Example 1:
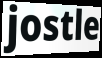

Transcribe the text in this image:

jostle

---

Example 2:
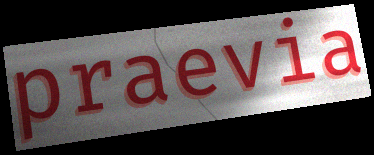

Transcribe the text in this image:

praevia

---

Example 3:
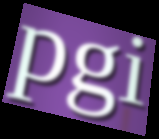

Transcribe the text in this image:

pgi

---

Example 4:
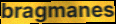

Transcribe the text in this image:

bragmanes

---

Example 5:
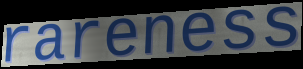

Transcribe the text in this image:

rareness